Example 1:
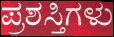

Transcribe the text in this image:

ಪ್ರಶಸ್ತಿಗಳು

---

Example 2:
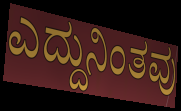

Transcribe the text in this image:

ಎದ್ದುನಿಂತವು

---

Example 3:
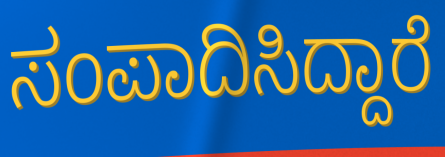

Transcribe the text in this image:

ಸಂಪಾದಿಸಿದ್ದಾರೆ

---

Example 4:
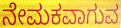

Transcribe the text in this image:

ನೇಮಕವಾಗುವ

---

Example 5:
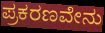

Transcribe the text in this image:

ಪ್ರಕರಣವೇನು